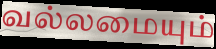
வல்லமையும்